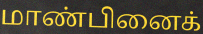
மாண்பினைக்